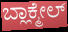
ಬ್ಲಾಕ್ಮೇಲ್